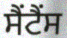
ਸੈਂਟੈਂਸ